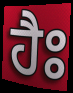
ਹੈਃ